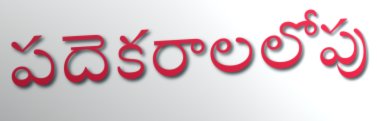
పదెకరాలలోపు